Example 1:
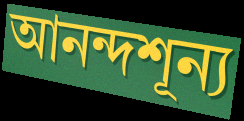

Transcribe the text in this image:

আনন্দশূন্য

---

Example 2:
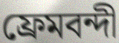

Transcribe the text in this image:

ফ্রেমবন্দী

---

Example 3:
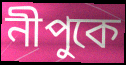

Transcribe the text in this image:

নীপুকে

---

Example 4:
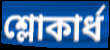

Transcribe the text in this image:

শ্লোকার্ধ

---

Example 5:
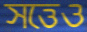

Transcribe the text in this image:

সত্তেও